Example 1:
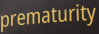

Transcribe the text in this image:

prematurity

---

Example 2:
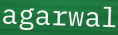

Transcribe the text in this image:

agarwal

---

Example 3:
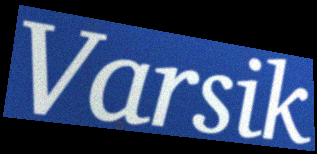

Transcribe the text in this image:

Varsik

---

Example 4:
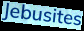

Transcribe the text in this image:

Jebusites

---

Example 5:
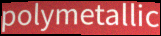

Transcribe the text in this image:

polymetallic